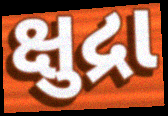
ક્ષુદ્રા